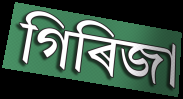
গিৰিজা